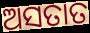
ଅସତାତ